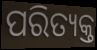
ପରିତ୍ୟକ୍ତ